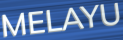
MELAYU